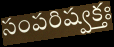
సంపరిష్వక్తః